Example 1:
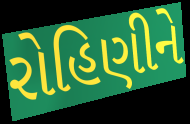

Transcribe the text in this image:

રોહિણીને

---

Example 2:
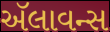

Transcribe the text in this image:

ઍલાવન્સ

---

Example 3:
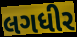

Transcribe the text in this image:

લગધીર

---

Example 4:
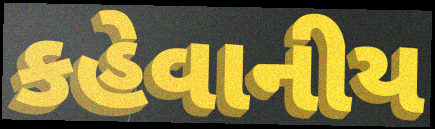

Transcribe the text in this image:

કહેવાનીય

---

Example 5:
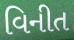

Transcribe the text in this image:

વિનીત